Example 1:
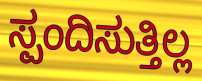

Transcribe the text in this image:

ಸ್ಪಂದಿಸುತ್ತಿಲ್ಲ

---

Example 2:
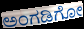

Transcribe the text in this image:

ಅಂಗಡಿಗೋ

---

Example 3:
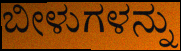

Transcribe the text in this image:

ಬೀಳುಗಳನ್ನು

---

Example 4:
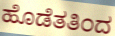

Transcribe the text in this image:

ಹೊಡೆತತಿಂದ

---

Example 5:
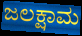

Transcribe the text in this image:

ಜಲಕ್ಷಾಮ